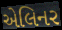
એલિનર